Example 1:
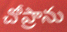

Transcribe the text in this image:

చోప్రాను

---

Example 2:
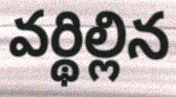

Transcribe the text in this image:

వర్థిల్లిన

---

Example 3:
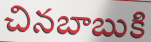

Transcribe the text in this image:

చినబాబుకి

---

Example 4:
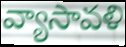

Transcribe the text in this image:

వ్యాసావళి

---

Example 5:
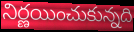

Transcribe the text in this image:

నిర్ణయించుకున్నది